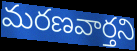
మరణవార్తని